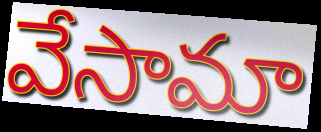
వేసామా